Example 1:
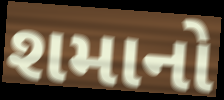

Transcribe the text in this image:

શમાનો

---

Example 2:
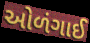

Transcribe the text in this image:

ઓળંગાઈ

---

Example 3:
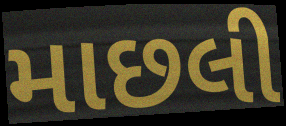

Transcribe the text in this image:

માછલી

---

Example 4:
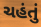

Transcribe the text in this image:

ચહંતું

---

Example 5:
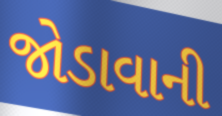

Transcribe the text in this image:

જોડાવાની